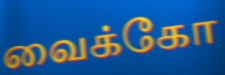
வைக்கோ